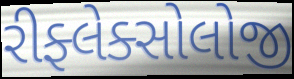
રીફ્લેક્સોલોજી